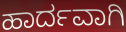
ಹಾರ್ದವಾಗಿ